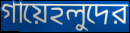
গায়েহলুদের